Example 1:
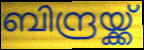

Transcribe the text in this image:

ബിന്ദ്രയ്ക്ക്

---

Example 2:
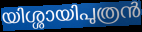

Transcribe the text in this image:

യിശ്ശായിപുത്രൻ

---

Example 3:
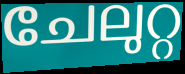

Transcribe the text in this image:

ചേലുറ്റ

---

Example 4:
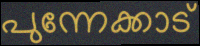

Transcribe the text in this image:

പുന്നേക്കാട്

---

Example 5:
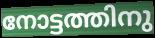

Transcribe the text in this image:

നോട്ടത്തിനു